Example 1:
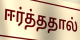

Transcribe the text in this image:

ஈர்த்ததால்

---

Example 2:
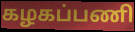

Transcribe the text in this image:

கழகப்பணி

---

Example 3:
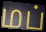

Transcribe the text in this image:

மப்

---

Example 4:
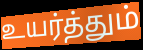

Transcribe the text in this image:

உயர்த்தும்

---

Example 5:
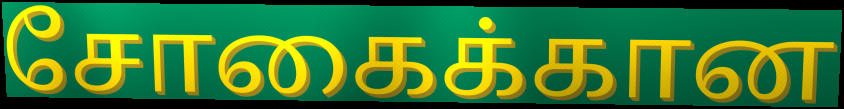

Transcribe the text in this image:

சோகைக்கான